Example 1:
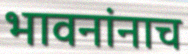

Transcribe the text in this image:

भावनांनाच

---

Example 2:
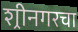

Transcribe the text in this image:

श्रीनगरचा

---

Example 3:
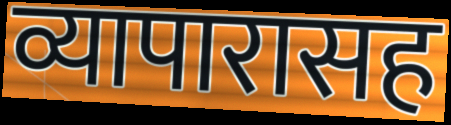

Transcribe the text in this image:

व्यापारासह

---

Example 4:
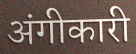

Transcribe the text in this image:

अंगीकारी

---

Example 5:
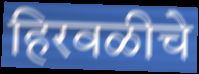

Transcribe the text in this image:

हिरवळीचे